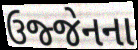
ઉજ્જેનના